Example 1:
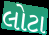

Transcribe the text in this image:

લોટા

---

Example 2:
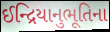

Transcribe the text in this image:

ઈન્દ્રિયાનુભૂતિના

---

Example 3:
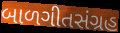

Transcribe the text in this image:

બાળગીતસંગ્રહ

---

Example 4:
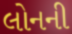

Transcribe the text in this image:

લોનની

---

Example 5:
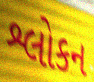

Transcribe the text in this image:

શ્લોકન